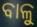
ବାଳୁ